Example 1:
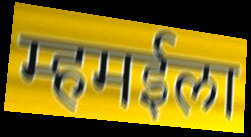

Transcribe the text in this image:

म्हमईला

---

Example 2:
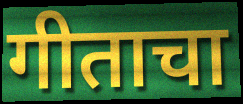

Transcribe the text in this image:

गीताचा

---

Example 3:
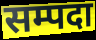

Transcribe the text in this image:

सम्पदा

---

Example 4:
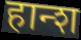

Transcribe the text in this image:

हान्श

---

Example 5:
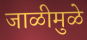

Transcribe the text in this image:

जाळीमुळे